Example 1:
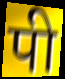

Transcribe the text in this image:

पी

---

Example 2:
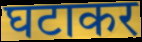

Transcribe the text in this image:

घटाकर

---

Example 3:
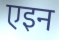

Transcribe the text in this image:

एइन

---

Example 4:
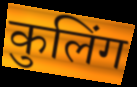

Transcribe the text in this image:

कुलिंग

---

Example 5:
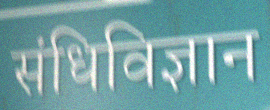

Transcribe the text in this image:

संधिविज्ञान